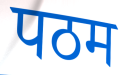
पठम